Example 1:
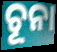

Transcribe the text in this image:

ଚୂନା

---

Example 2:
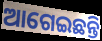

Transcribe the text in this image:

ଆଗେଇଛନ୍ତି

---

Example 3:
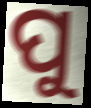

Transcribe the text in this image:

ପୁ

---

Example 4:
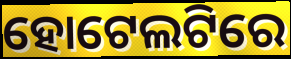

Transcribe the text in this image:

ହୋଟେଲଟିରେ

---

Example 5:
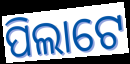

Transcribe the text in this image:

ପିଲାଟେ